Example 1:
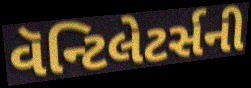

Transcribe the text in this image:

વૅન્ટિલેટર્સની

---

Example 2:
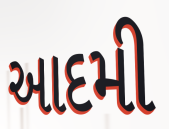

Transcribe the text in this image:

આદમી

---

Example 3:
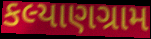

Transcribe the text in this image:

કલ્યાણગ્રામ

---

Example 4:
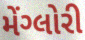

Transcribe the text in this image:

મેંગ્લોરી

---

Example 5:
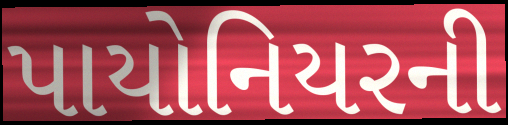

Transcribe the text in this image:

પાયોનિયરની